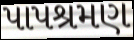
પાપશ્રમણ